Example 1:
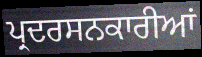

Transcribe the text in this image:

ਪ੍ਰਦਰਸਨਕਾਰੀਆਂ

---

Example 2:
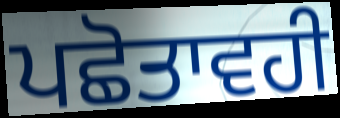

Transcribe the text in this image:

ਪਛੋਤਾਵਹੀ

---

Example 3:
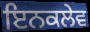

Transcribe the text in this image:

ਇਨਕਲੇਵ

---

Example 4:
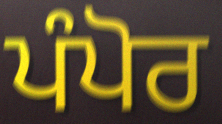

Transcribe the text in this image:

ਪੰਪੋਰ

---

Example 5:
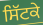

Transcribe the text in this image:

ਸਿੱਟਕੇ